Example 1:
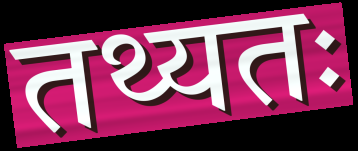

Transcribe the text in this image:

तथ्यतः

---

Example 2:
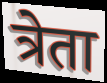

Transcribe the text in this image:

त्रेता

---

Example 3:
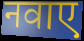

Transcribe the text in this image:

नवाए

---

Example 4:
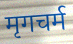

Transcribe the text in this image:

मृगचर्म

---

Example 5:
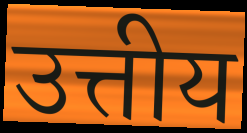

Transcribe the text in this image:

उत्तीय